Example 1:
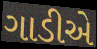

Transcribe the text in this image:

ગાડીએ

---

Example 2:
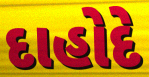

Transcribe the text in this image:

દાહોદે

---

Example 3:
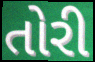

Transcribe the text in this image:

તોરી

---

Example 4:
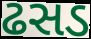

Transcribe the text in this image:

ઢસડ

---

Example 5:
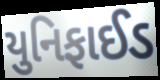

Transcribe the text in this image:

યુનિફાઈડ